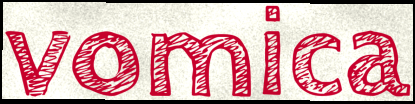
vomica